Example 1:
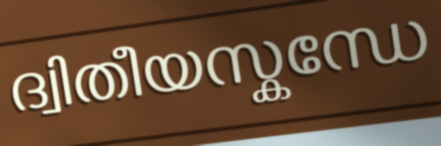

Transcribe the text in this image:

ദ്വിതീയസ്കന്ധേ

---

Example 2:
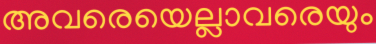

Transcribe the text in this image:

അവരെയെല്ലാവരെയും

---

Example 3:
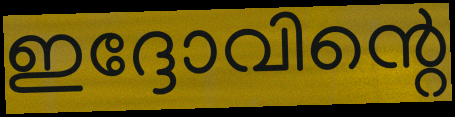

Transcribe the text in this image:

ഇദ്ദോവിന്റെ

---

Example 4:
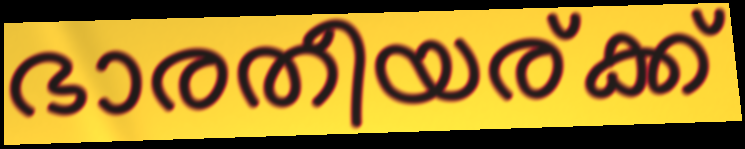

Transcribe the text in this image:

ഭാരതീയര്ക്ക്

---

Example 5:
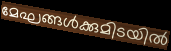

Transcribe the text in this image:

മേഘങ്ങൾക്കുമിടയിൽ